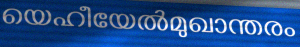
യെഹീയേൽമുഖാന്തരം